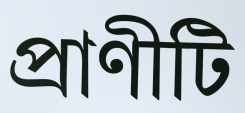
প্রাণীটি